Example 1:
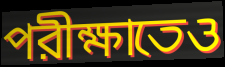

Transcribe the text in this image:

পরীক্ষাতেও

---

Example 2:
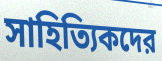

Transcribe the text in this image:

সাহিত্যিকদের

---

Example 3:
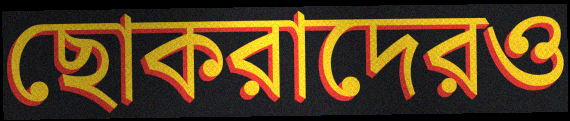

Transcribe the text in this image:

ছোকরাদেরও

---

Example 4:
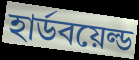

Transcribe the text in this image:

হার্ডবয়েল্ড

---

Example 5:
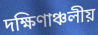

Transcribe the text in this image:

দক্ষিণাঞ্চলীয়